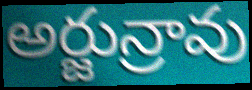
అర్జున్రావు